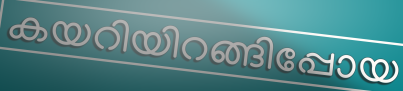
കയറിയിറങ്ങിപ്പോയ